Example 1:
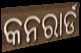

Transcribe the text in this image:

କନରାର୍ଡ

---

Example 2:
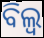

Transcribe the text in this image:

ବିଲ୍ଵ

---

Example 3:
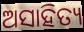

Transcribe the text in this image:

ଅସାହିତ୍ୟ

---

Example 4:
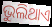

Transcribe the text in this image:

ଭୁଲିଥାଏ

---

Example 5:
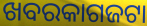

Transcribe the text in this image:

ଖବରକାଗଜଟା